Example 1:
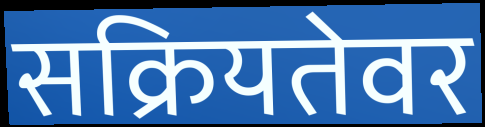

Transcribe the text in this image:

सक्रियतेवर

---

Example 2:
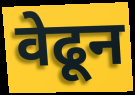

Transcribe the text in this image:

वेढून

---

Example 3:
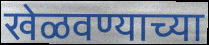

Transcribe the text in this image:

खेळवण्याच्या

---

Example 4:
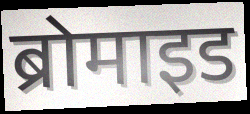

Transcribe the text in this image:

ब्रोमाइड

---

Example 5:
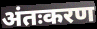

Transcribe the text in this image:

अंतःकरण